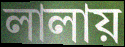
লালায়